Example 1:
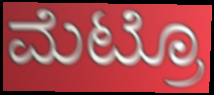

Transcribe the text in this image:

ಮೆಟ್ರೊ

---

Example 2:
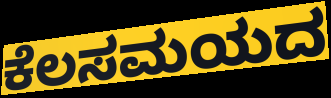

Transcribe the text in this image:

ಕೆಲಸಮಯದ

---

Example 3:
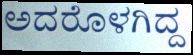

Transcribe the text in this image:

ಅದರೊಳಗಿದ್ದ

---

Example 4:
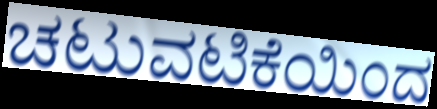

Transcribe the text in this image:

ಚಟುವಟಿಕೆಯಿಂದ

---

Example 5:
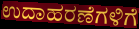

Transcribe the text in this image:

ಉದಾಹರಣೆಗಳಿಗೆ